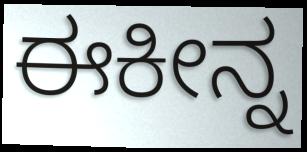
ಈಕೀನ್ನ